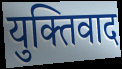
युक्तिवाद